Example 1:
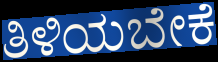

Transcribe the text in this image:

ತಿಳಿಯಬೇಕೆ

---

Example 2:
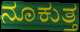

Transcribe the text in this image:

ನೂಕುತ್ತ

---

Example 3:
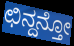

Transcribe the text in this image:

ಛಿನ್ದನ್ತೋ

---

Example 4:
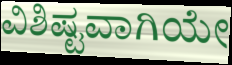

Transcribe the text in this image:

ವಿಶಿಷ್ಟವಾಗಿಯೇ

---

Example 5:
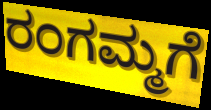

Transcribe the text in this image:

ರಂಗಮ್ಮಗೆ